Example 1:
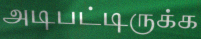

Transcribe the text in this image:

அடிபட்டிருக்க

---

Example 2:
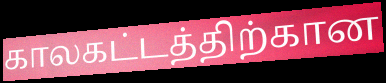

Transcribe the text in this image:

காலகட்டத்திற்கான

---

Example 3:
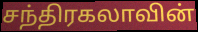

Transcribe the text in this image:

சந்திரகலாவின்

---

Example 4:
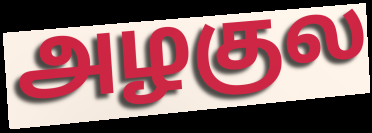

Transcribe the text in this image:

அழகுல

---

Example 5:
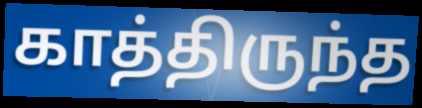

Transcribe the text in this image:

காத்திருந்த